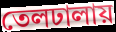
তেলঢালায়